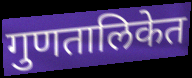
गुणतालिकेत